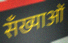
सँख्याओं